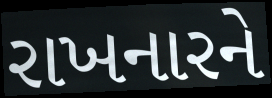
રાખનારને